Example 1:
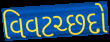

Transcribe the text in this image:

વિવટચ્છદો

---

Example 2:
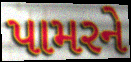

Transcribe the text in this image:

પામરને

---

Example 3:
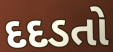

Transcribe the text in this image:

દદડતો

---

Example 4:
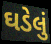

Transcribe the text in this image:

ઘડેલું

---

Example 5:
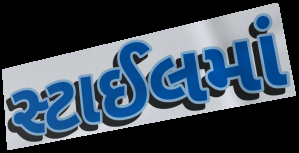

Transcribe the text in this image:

સ્ટાઈલમાં